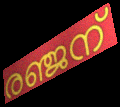
രഞ്ജന്